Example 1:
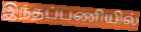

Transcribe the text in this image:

இந்தப்பணியில்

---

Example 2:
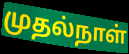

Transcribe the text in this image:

முதல்நாள்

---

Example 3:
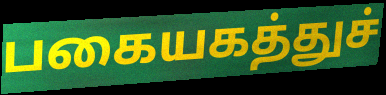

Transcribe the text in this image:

பகையகத்துச்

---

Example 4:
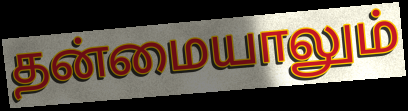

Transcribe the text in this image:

தன்மையாலும்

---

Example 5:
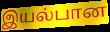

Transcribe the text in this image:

இயல்பான